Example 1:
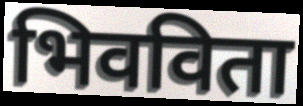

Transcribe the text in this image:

भिवविता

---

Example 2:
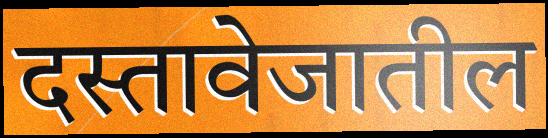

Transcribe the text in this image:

दस्तावेजातील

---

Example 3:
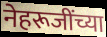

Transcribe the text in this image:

नेहरूजींच्या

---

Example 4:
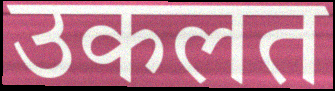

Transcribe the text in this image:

उकलत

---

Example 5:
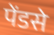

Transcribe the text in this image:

पेंडसे